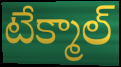
టేక్మాల్